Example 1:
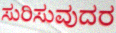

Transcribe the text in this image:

ಸುರಿಸುವುದರ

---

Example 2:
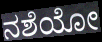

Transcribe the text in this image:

ನಶೆಯೋ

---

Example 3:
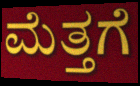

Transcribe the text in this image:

ಮೆತ್ತಗೆ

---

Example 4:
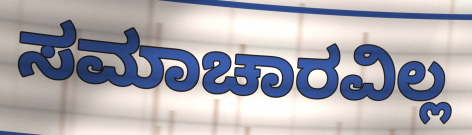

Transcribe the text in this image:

ಸಮಾಚಾರವಿಲ್ಲ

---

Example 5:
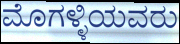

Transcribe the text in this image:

ಮೊಗಳ್ಳಿಯವರು